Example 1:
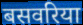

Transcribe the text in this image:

बसवरिया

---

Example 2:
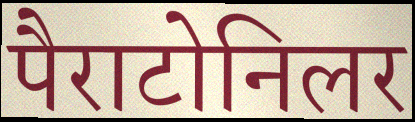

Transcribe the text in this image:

पैराटोनिलर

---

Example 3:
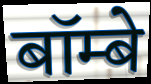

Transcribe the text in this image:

बॉम्बे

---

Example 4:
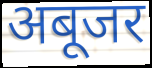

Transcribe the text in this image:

अबूजर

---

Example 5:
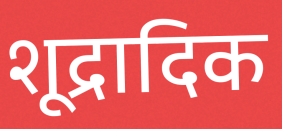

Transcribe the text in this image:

शूद्रादिक